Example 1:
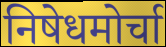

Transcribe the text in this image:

निषेधमोर्चा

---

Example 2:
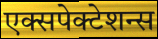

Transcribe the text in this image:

एक्सपेक्टेशन्स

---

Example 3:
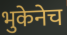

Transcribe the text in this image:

भुकेनेच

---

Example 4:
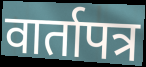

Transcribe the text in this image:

वार्तापत्र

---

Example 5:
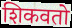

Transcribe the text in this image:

शिकवतो